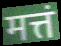
मत्तं